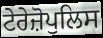
ਟੇਰੇਜ਼ੋਪੁਲਿਸ